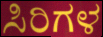
ಸಿರಿಗಳ